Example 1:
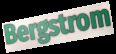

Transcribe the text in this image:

Bergstrom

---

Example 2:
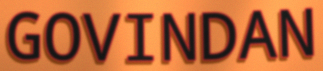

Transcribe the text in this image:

GOVINDAN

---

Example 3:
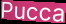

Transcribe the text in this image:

Pucca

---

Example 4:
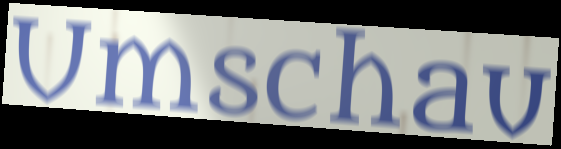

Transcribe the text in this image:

Umschau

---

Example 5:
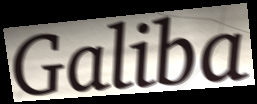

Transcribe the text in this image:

Galiba